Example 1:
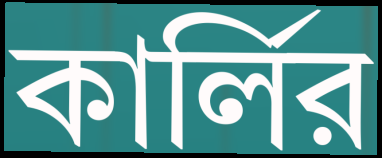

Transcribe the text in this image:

কার্লির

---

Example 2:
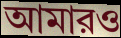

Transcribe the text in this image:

আমারও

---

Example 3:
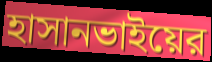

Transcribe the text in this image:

হাসানভাইয়ের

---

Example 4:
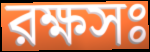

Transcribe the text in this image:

রক্ষসঃ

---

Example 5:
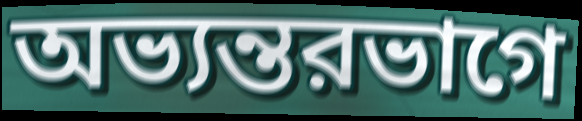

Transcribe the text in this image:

অভ্যন্তরভাগে